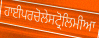
ਹਾਈਪਰਚੋਲੇਸਟ੍ਰੋਲਿਮੀਆ